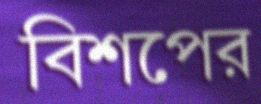
বিশপের